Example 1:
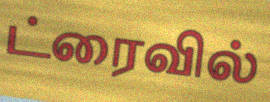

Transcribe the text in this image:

ட்ரைவில்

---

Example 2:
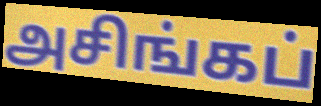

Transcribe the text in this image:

அசிங்கப்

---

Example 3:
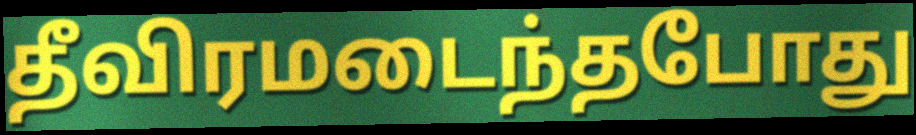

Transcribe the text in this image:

தீவிரமடைந்தபோது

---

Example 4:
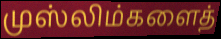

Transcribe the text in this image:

முஸ்லிம்களைத்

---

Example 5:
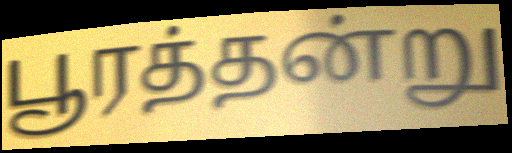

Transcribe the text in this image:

பூரத்தன்று